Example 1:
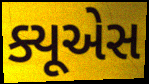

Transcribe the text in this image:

ક્યૂએસ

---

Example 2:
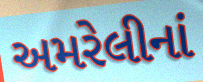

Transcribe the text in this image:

અમરેલીનાં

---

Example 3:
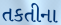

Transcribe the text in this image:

તકતીના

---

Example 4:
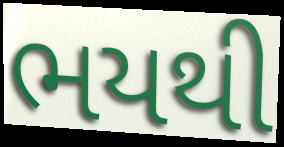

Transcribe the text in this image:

ભયથી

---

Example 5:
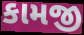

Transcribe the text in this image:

કામજી